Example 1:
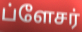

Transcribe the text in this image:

ப்ளேசர்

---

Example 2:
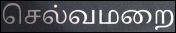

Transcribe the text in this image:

செல்வமறை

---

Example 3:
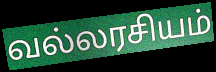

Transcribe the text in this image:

வல்லரசியம்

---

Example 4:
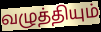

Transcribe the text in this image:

வழுத்தியும்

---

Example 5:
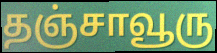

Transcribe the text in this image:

தஞ்சாவூரு